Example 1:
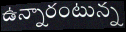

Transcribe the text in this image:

ఉన్నారంటున్న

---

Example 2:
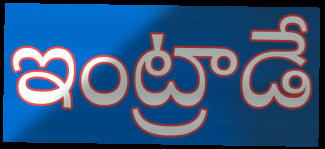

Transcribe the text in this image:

ఇంట్రాడే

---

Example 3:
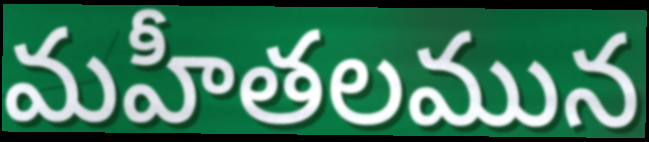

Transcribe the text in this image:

మహీతలమున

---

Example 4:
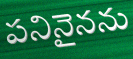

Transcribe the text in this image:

పనినైనను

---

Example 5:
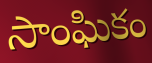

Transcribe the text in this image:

సాంఘికం